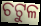
ଚଟୁଳ